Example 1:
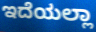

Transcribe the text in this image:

ಇದೆಯಲ್ಲಾ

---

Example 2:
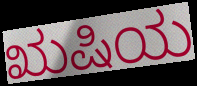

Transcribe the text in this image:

ಋಷಿಯ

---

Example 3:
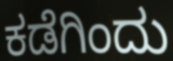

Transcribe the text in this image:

ಕಡೆಗಿಂದು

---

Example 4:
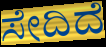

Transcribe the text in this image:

ಸೇದಿದೆ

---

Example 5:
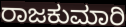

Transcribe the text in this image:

ರಾಜಕುಮಾರಿ